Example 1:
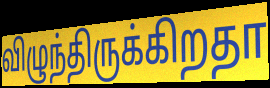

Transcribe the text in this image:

விழுந்திருக்கிறதா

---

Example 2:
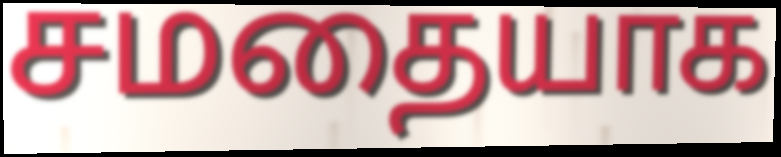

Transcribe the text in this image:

சமதையாக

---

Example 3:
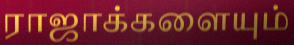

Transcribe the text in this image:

ராஜாக்களையும்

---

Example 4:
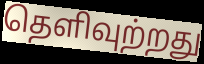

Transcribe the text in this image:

தெளிவுற்றது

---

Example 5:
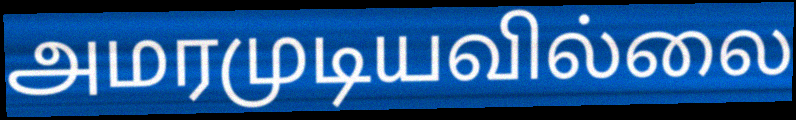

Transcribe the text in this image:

அமரமுடியவில்லை